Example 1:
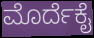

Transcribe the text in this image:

ಮೊರ್ದೆಕೈ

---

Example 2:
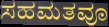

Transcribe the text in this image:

ಸಹಮತವೂ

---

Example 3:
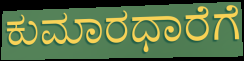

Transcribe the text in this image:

ಕುಮಾರಧಾರೆಗೆ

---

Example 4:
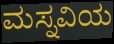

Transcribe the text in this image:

ಮಸ್ನವಿಯ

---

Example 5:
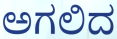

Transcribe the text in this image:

ಅಗಲಿದ